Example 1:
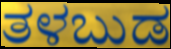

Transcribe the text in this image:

ತಳಬುಡ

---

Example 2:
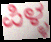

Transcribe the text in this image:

ಪಿಳ್ಳ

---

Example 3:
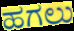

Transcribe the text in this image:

ಹಗಲು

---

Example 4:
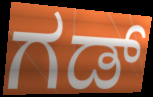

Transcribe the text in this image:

ಗಡ್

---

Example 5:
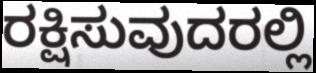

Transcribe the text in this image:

ರಕ್ಷಿಸುವುದರಲ್ಲಿ